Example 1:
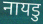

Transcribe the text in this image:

नायडु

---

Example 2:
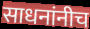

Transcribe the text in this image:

साधनांनीच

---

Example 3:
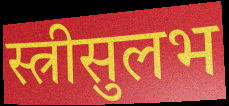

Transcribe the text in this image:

स्त्रीसुलभ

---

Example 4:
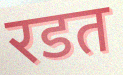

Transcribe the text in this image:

रडत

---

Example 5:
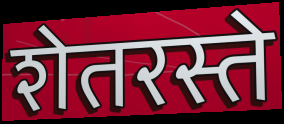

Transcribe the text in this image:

शेतरस्ते